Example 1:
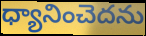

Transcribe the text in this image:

ధ్యానించెదను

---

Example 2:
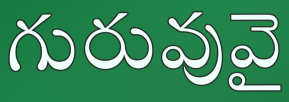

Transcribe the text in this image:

గురువువై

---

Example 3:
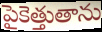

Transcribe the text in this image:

పైకెత్తుతాను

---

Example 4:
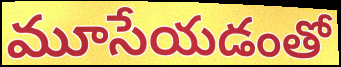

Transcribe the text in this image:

మూసేయడంతో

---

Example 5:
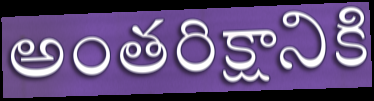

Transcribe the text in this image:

అంతరిక్షానికి